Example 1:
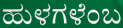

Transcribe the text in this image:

ಹುಳಗಳೆಂಬ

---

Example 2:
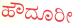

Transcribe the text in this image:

ಹೌದೂರೀ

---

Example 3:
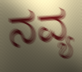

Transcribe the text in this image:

ನವ್ಯ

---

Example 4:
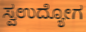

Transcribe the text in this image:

ಸ್ವಉದ್ಯೋಗ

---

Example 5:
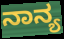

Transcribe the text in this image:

ನಾನ್ಯ